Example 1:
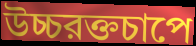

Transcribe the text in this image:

উচ্চরক্তচাপে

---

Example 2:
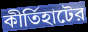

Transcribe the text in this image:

কীর্তিহাটের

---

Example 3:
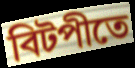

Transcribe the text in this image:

বিটপীতে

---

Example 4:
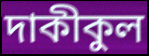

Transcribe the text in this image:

দাকীকুল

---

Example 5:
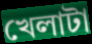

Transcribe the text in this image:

খেলাটা